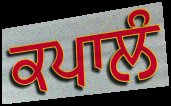
ਕਪਾਲੰ